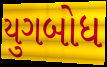
યુગબોધ